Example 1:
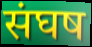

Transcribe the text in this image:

संघष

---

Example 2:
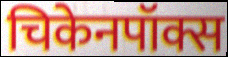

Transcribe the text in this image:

चिकेनपॉक्स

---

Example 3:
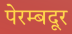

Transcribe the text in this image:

पेरम्बदूर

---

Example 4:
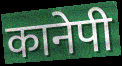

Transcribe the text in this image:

कानेपी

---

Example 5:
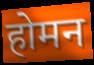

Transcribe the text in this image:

होमन